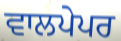
ਵਾਲਪੇਪਰ